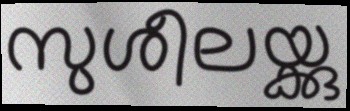
സുശീലയ്ക്കു